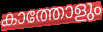
കാത്തോളും